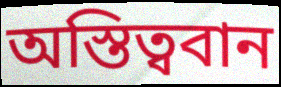
অস্তিত্ববান